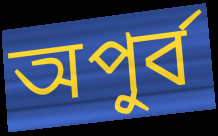
অপুর্ব